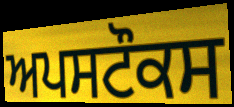
ਅਪਸਟੌਕਸ